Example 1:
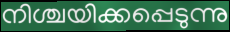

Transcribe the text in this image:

നിശ്ചയിക്കപ്പെടുന്നു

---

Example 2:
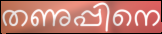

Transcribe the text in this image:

തണുപ്പിനെ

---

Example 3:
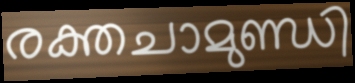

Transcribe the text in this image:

രക്തചാമുണ്ഡി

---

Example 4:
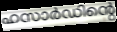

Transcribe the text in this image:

ഹസാർഡിന്റെ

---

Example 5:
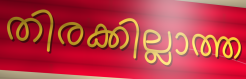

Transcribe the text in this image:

തിരക്കില്ലാത്ത